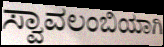
ಸ್ವಾವಲಂಬಿಯಾಗಿ